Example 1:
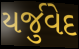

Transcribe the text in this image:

યર્જુવેદ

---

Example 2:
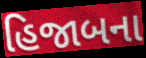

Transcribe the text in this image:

હિજાબના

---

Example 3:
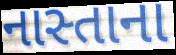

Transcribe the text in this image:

નાસ્તાના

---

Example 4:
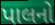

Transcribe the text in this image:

પાલનો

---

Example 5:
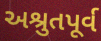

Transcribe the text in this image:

અશ્રુતપૂર્વ